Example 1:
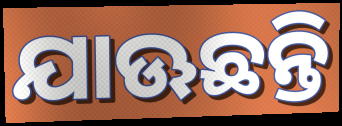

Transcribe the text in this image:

ଯାଊଛନ୍ତି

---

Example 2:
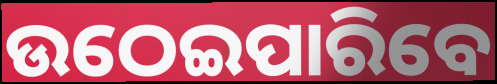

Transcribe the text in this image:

ଉଠେଇପାରିବେ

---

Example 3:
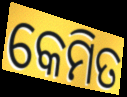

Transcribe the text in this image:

କେମିତ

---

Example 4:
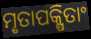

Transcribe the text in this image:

ମୃତାପକ୍ଷିତାଂ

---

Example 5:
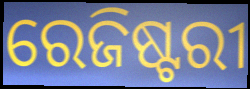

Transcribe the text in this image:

ରେଜିଷ୍ଟରୀ